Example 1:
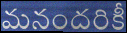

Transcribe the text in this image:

మనందరికీ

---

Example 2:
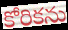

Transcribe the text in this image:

కోరికను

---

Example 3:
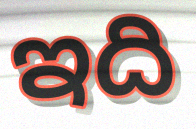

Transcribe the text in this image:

ఇది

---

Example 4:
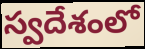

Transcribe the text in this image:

స్వదేశంలో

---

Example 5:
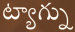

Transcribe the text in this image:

ట్యాగ్ను